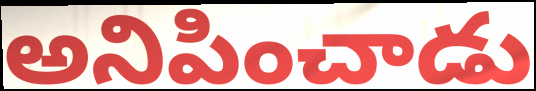
అనిపించాడు